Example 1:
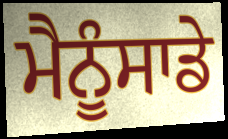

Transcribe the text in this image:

ਮੈਨੂੰਸਾਡੇ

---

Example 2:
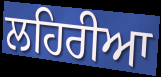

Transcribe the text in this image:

ਲਹਿਰੀਆ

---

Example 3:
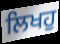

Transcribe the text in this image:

ਲਿਖਹੁ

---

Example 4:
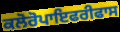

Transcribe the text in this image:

ਕਲੋਰੋਪਾਇਫਰੀਫਾਸ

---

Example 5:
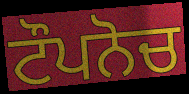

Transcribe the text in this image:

ਟੌਪਨੋਚ